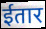
ईतार